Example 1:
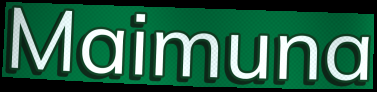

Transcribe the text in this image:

Maimuna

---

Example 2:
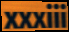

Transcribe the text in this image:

xxxiii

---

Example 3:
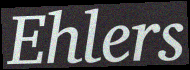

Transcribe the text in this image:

Ehlers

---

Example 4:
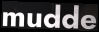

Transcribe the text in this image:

mudde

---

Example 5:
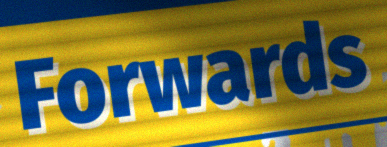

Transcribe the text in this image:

Forwards